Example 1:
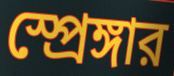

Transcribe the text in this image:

স্প্রেঙ্গার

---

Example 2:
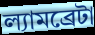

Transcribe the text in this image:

ল্যামব্রেটা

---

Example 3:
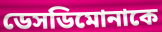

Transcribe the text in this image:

ডেসডিমোনাকে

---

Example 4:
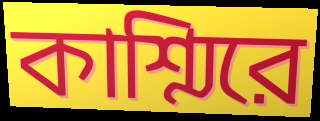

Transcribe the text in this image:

কাশ্মিরে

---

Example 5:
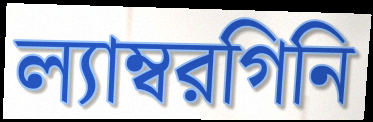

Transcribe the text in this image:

ল্যাম্বরগিনি